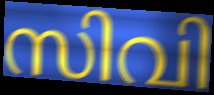
സിവി